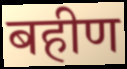
बहीण